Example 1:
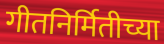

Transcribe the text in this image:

गीतनिर्मितीच्या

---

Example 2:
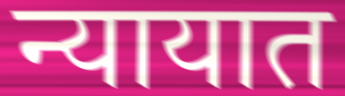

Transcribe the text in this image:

न्यायात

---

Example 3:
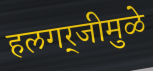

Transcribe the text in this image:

हलगर्जीमुळे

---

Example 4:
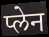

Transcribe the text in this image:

प्लेन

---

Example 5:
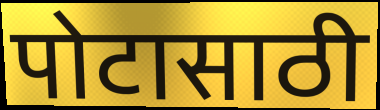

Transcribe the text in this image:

पोटासाठी